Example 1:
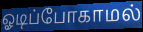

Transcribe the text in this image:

ஓடிப்போகாமல்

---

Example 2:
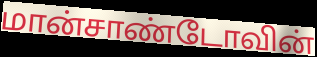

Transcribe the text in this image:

மான்சாண்டோவின்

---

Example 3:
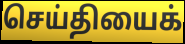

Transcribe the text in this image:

செய்தியைக்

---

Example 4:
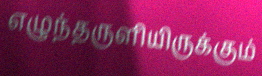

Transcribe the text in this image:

எழுந்தருளியிருக்கும்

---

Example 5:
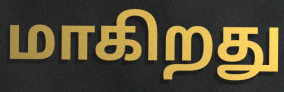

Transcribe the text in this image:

மாகிறது